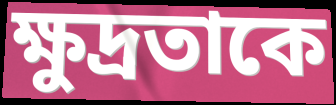
ক্ষুদ্রতাকে